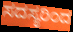
ಸದಸ್ಯರಿಂದ